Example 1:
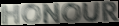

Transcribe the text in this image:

HONOUR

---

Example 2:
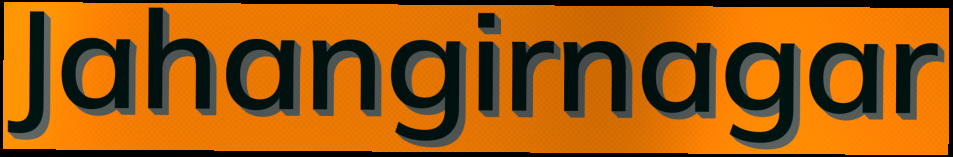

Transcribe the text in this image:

Jahangirnagar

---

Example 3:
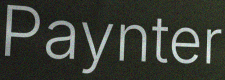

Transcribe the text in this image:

Paynter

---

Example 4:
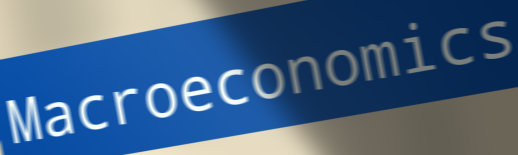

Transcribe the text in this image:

Macroeconomics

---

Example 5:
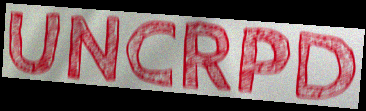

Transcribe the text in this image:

UNCRPD